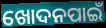
ଖୋଦନପାଇଁ